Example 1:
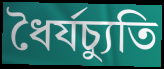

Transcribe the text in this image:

ধৈর্যচ্যুতি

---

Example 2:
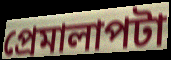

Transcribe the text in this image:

প্রেমালাপটা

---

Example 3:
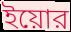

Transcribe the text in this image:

ইয়োর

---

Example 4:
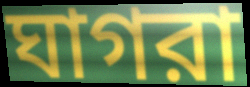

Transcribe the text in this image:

ঘাগরা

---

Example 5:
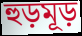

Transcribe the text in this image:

হুড়মূড়